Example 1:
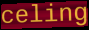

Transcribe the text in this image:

celing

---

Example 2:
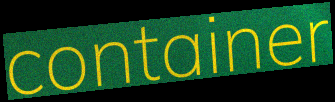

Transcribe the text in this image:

container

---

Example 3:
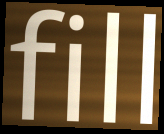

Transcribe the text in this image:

fill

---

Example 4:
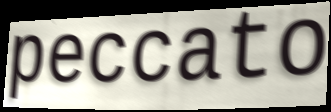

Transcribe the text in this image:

peccato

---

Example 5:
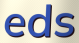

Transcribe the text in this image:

eds